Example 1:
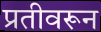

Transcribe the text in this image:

प्रतीवरून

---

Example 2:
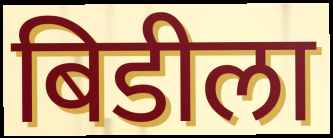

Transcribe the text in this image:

बिडीला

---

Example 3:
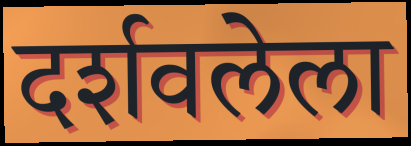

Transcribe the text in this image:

दर्शवलेला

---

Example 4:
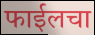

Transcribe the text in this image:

फाईलचा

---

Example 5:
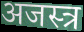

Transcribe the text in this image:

अजस्त्र